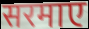
सरमाए